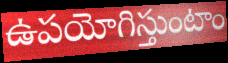
ఉపయోగిస్తుంటాం